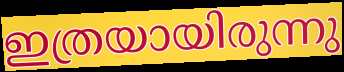
ഇത്രയായിരുന്നു